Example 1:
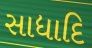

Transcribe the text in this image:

સાદ્યાદિ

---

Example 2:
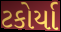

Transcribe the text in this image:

ટકોર્યા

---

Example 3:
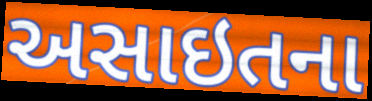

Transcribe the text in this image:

અસાઇતના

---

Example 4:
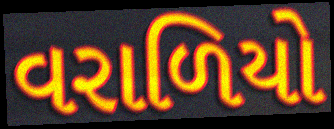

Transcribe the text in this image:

વરાળિયો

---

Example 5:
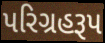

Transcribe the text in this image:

પરિગ્રહરૂપ